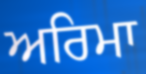
ਅਰਿਮਾ